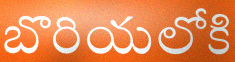
బొరియలోకి